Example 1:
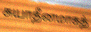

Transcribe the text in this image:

சுயாதீனமாகத்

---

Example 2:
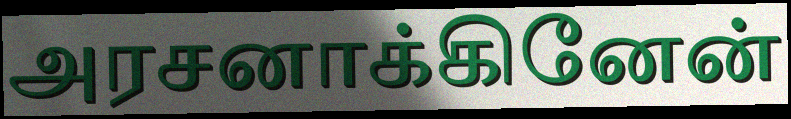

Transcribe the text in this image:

அரசனாக்கினேன்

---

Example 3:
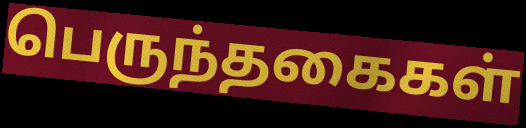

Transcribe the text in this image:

பெருந்தகைகள்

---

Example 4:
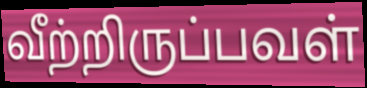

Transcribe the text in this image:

வீற்றிருப்பவள்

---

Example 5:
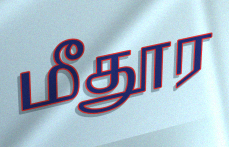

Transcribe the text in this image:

மீதூர